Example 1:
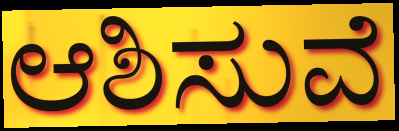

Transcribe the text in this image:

ಆಶಿಸುವೆ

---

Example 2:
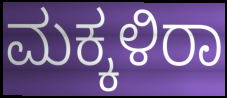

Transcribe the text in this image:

ಮಕ್ಕಳಿರಾ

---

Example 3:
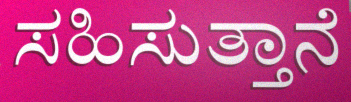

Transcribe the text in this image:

ಸಹಿಸುತ್ತಾನೆ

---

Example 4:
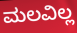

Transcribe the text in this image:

ಮಲವಿಲ್ಲ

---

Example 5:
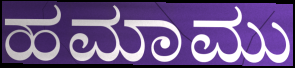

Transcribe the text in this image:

ಹಮಾಮು